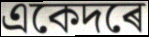
একেদৰে